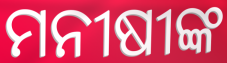
ମନୀଷୀଙ୍କ